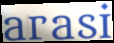
arasi